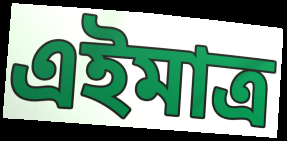
এইমাত্র